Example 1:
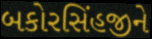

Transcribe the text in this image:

બકોરસિંહજીને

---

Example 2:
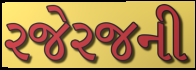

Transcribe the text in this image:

રજેરજની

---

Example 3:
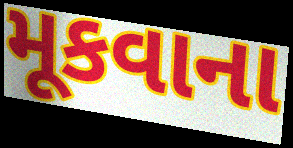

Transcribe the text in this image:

મૂકવાના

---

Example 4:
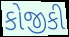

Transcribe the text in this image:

કોજીકી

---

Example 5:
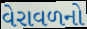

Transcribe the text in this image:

વેરાવળનો